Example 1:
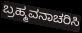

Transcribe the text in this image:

ಬ್ರಹ್ಮವನಾಚರಿಸಿ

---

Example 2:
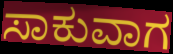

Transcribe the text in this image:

ಸಾಕುವಾಗ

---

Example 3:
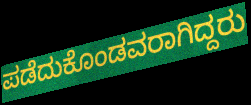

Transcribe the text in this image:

ಪಡೆದುಕೊಂಡವರಾಗಿದ್ದರು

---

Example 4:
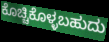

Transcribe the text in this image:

ಕೊಚ್ಚಿಕೊಳ್ಳಬಹುದು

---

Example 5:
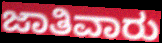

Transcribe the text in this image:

ಜಾತಿವಾರು